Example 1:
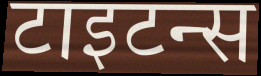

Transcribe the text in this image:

टाइटन्स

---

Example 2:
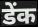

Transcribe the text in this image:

डेंक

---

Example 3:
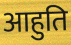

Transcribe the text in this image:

आहुति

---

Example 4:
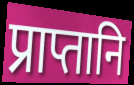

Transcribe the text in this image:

प्राप्तानि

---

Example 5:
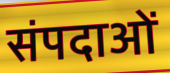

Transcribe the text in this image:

संपदाओं